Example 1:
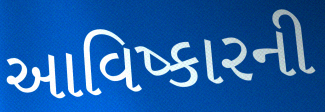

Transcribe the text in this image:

આવિષ્કારની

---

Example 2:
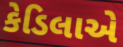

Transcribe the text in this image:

કેડિલાએ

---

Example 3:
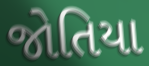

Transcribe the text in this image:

જોતિયા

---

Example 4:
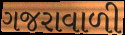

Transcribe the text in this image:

ગજરાવાળી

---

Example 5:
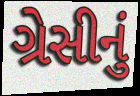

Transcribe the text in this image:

ગ્રેસીનું